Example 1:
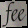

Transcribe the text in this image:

fee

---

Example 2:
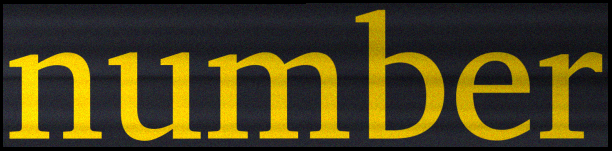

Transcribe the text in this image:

number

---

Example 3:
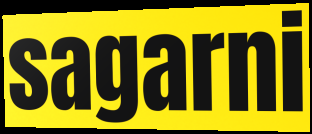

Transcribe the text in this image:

sagarni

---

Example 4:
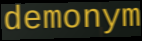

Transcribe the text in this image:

demonym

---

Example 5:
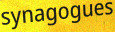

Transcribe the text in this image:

synagogues